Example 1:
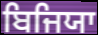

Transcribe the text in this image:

ਬਿਜਿਯਾ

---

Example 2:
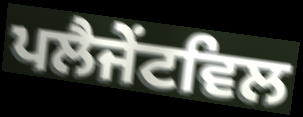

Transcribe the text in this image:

ਪਲੈਜੇਂਟਵਿਲ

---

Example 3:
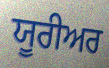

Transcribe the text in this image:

ਯੂਰੀਅਰ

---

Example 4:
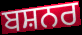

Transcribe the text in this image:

ਬਸ਼ਨਰ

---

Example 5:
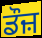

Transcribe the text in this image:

ਡੌਜ਼